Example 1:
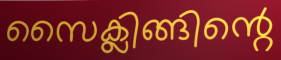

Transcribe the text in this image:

സൈക്ലിങ്ങിന്റെ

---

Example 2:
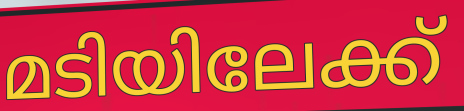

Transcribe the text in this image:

മടിയിലേക്ക്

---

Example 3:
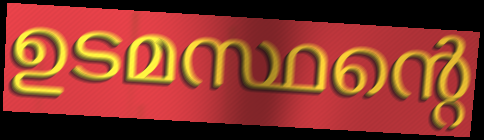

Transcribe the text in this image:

ഉടമസ്ഥന്റെ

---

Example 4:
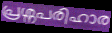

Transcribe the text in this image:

പ്രശ്നപരിഹാര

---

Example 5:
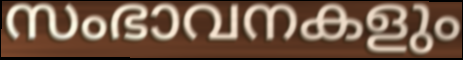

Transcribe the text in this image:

സംഭാവനകളും